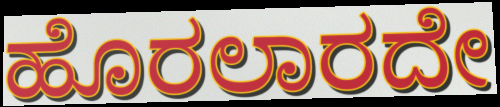
ಹೊರಲಾರದೇ